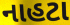
નાહટા